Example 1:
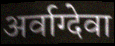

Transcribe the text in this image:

अर्वाग्देवा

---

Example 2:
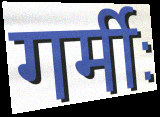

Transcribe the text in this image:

गर्मीः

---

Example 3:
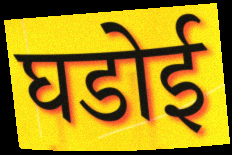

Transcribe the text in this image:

घडोई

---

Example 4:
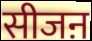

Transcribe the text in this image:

सीजऩ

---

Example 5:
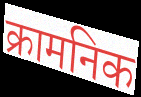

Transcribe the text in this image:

क्रामनिक